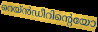
റെയ്ൻഡീറിന്റെയോ